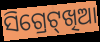
ସିଗ୍ରେଟ୍‌ଖିଆ